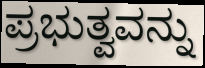
ಪ್ರಭುತ್ವವನ್ನು